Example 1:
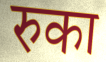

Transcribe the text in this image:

रुका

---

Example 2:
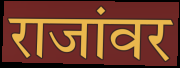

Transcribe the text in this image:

राजांवर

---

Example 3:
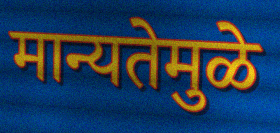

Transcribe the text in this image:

मान्यतेमुळे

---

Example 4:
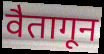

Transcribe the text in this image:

वैतागून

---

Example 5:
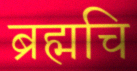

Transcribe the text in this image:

ब्रह्मचि